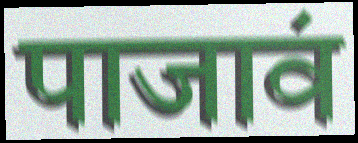
पाजावं